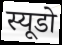
स्यूडो